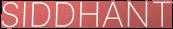
SIDDHANT